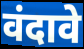
वंदावे